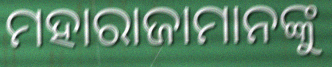
ମହାରାଜାମାନଙ୍କୁ